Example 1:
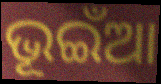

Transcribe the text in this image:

ଭୂଇଁଆ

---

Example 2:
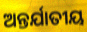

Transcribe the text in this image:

ଅନ୍ତର୍ଯାତୀୟ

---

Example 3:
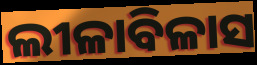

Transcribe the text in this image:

ଲୀଳାବିଳାସ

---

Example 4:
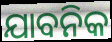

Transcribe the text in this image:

ଯାବନିକ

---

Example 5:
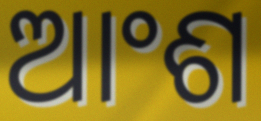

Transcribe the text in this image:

ଆଂଶ